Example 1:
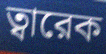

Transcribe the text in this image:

ত্বারেক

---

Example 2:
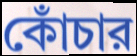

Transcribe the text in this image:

কোঁচার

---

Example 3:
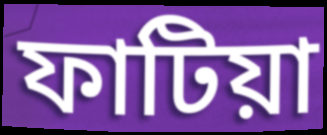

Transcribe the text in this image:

ফাটিয়া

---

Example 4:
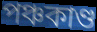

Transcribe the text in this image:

পঞ্চকাণ্ড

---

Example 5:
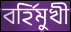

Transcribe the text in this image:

বর্হিমুখী